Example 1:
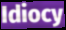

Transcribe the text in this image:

Idiocy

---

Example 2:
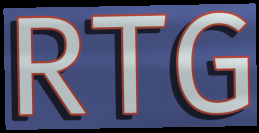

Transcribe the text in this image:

RTG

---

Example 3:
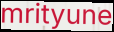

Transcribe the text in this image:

mrityune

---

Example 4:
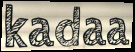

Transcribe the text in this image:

kadaa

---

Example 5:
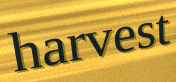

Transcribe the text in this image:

harvest